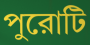
পুরোটি